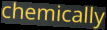
chemically